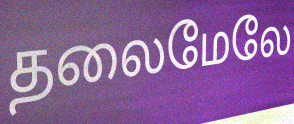
தலைமேலே